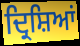
ਦ੍ਰਿਸ਼ਿਆਂ